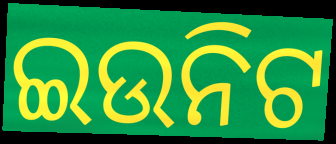
ଇଉନିଟ